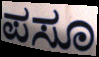
ಪಸೂ